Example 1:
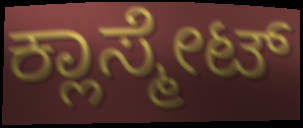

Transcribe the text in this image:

ಕ್ಲಾಸ್ಮೇಟ್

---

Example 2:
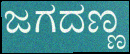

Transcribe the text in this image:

ಜಗದಣ್ಣ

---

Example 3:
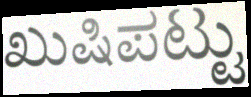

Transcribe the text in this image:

ಖುಷಿಪಟ್ಟು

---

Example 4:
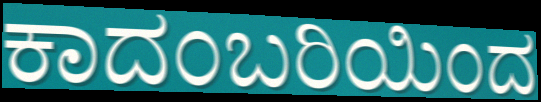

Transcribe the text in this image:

ಕಾದಂಬರಿಯಿಂದ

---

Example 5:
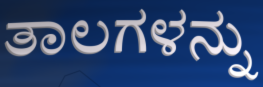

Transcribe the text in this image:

ತಾಲಗಳನ್ನು